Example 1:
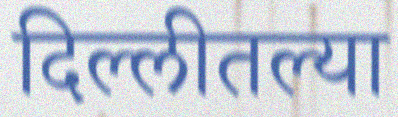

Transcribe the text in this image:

दिल्लीतल्या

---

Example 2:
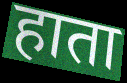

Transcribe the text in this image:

हाता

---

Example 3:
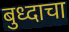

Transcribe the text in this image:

बुध्दाचा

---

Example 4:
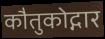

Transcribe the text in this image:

कौतुकोद्गार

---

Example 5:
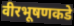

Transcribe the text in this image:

वीरभूषणकडे